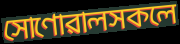
সোণোৱালসকলে